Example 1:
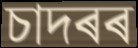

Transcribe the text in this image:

চাদৰৰ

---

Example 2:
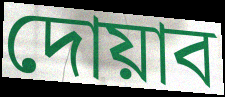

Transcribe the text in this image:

দোয়াব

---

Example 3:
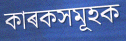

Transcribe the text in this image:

কাৰকসমূহক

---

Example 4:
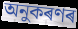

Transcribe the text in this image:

অনুকৰণৰ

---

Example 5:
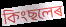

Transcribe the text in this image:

কিংছলেৰ